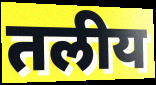
तलीय